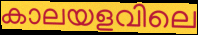
കാലയളവിലെ